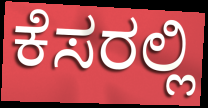
ಕೆಸರಲ್ಲಿ